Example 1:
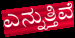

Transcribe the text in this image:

ಎನ್ನುತ್ತಿವೆ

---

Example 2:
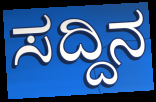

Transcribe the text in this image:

ಸದ್ದಿನ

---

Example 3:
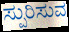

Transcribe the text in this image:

ಸ್ಪುರಿಸುವ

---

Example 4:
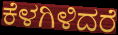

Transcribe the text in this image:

ಕೆಳಗಿಳಿದರೆ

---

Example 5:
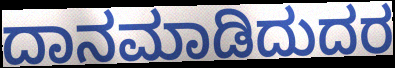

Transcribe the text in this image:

ದಾನಮಾಡಿದುದರ